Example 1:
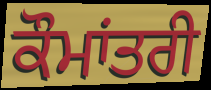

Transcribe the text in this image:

ਕੌਮਾਂਤਰੀ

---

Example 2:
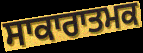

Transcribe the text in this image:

ਸਾਕਾਰਾਤਮਕ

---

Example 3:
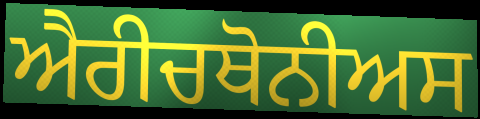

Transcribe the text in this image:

ਐਰੀਚਥੋਨੀਅਸ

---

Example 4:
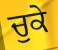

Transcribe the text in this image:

ਚੁਕੇ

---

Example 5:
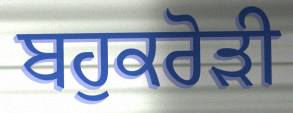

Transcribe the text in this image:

ਬਹੁਕਰੋੜੀ